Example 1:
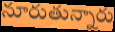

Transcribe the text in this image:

నూరుతున్నారు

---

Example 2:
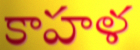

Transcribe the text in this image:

కాహళ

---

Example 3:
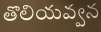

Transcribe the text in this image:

తొలియవ్వన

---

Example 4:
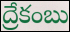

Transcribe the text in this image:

ద్రేకంబు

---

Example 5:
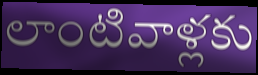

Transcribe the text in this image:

లాంటివాళ్లకు